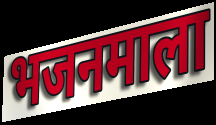
भजनमाला